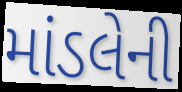
માંડલેની